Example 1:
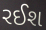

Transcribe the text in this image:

રઈશ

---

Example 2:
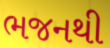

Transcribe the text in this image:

ભજનથી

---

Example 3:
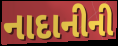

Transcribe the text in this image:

નાદાનીની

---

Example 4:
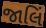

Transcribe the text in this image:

જાલિં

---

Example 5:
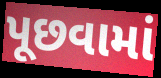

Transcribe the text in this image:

પૂછવામાં